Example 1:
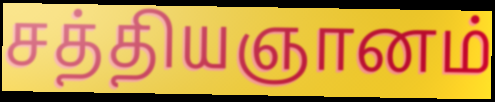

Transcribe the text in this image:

சத்தியஞானம்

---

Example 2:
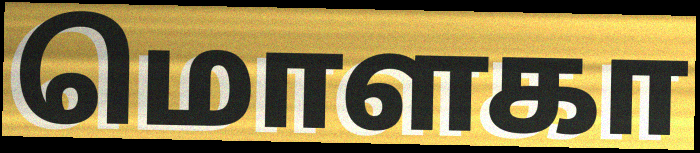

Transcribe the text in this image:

மொளகா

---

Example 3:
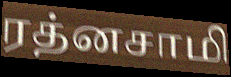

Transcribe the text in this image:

ரத்னசாமி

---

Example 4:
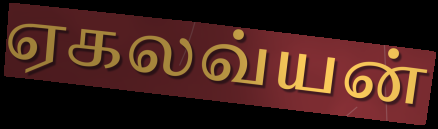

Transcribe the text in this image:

ஏகலவ்யன்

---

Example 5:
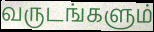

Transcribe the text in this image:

வருடங்களும்